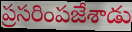
ప్రసరింపజేశాడు